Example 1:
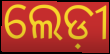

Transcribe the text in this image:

ଲେଡ଼ୀ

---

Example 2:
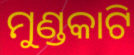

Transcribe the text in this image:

ମୁଣ୍ଡକାଟି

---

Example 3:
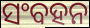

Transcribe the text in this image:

ସଂବହନ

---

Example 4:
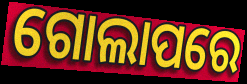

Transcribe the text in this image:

ଗୋଲାପରେ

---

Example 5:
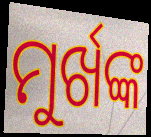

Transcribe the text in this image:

ମୁର୍ଖଙ୍କ